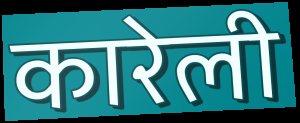
कारेली